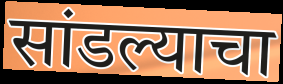
सांडल्याचा